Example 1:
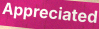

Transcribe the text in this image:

Appreciated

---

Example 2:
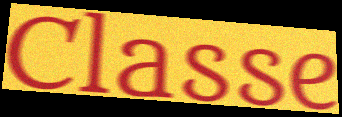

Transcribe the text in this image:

Classe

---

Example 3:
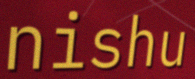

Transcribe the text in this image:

nishu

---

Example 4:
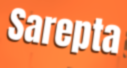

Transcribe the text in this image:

Sarepta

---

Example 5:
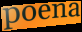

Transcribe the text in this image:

poena